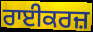
ਰਾਈਕਰਜ਼